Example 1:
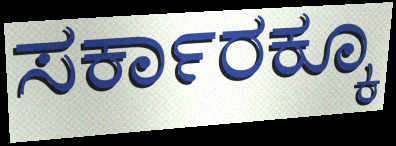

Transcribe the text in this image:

ಸರ್ಕಾರಕ್ಕೂ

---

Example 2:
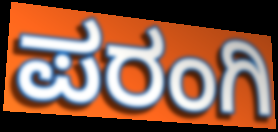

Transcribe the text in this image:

ಪರಂಗಿ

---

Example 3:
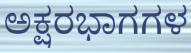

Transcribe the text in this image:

ಅಕ್ಷರಭಾಗಗಳ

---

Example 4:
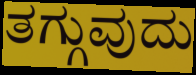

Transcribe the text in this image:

ತಗ್ಗುವುದು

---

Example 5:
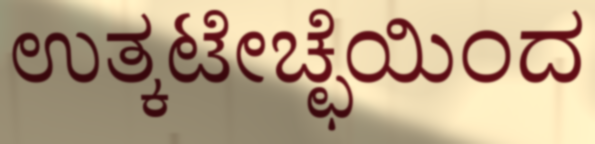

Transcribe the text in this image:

ಉತ್ಕಟೇಚ್ಛೆಯಿಂದ